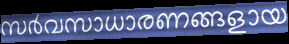
സർവസാധാരണങ്ങളായ